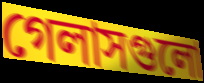
গেলাসগুলো